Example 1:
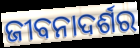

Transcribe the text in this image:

ଜୀବନାଦର୍ଶର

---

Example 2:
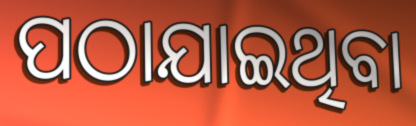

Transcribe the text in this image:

ପଠାଯାଇଥିବା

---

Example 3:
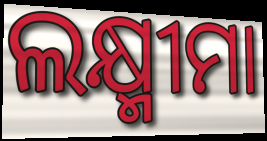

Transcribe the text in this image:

ଲକ୍ଷ୍ମୀମା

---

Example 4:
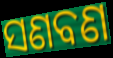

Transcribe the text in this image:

ସଣବଣ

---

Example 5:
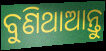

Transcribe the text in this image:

ବୁଣିଥାଆନ୍ତୁ